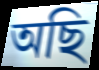
অছি